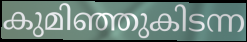
കുമിഞ്ഞുകിടന്ന